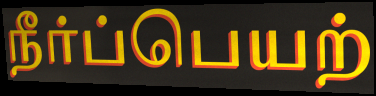
நீர்ப்பெயற்